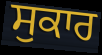
ਸੁਕਾਰ